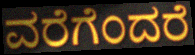
ವರೆಗೆಂದರೆ